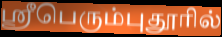
ஸ்ரீபெரும்புதூரில்